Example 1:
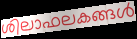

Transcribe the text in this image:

ശിലാഫലകങ്ങൾ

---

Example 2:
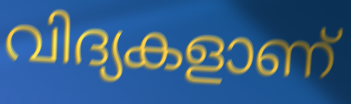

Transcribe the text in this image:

വിദ്യകളാണ്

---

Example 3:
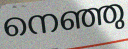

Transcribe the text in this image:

നെഞ്ഞു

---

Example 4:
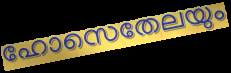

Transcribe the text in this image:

ഹോസെതേലയും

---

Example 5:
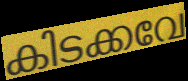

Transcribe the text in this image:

കിടക്കവേ